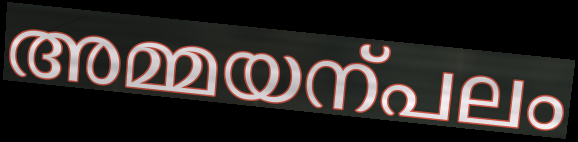
അമ്മയന്പലം